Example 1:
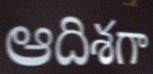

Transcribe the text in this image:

ఆదిశగా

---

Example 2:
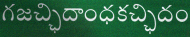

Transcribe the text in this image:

గజచ్ఛిదాంధకచ్ఛిదం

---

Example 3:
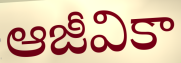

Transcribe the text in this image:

ఆజీవికా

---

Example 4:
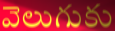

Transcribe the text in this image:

వెలుగుకు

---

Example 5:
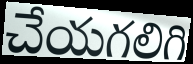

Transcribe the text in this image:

చేయగలిగి